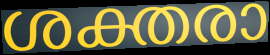
ശക്തരാ